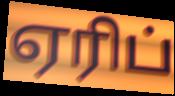
ஏரிப்